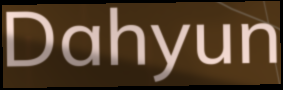
Dahyun